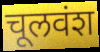
चूलवंश